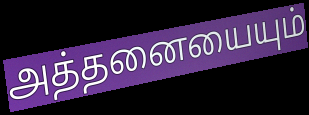
அத்தனையையும்